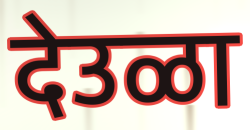
देउळा